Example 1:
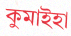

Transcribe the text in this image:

কুমাইহা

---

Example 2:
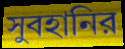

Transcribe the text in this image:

সুবহানির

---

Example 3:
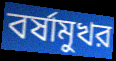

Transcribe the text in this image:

বর্ষামুখর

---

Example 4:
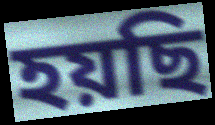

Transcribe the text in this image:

হয়ছি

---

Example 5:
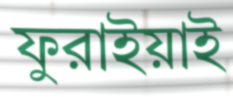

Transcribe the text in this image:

ফুরাইয়াই